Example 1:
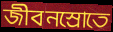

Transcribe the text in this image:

জীবনস্রোতে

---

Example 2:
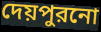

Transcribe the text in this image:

দেয়পুরনো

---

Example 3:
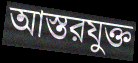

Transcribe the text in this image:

আস্তরযুক্ত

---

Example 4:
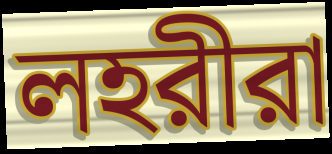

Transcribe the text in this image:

লহরীরা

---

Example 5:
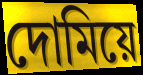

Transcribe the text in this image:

দোমিয়ে